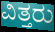
ವಿತ್ತರು